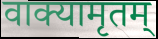
वाक्यामृतम्